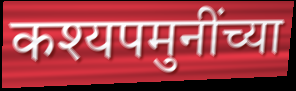
कश्यपमुनींच्या